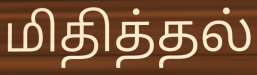
மிதித்தல்